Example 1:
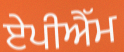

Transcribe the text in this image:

ਏਪੀਐੱਮ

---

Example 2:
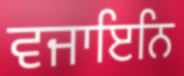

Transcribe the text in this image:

ਵਜਾਇਨਿ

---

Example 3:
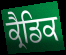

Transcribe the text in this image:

ਕ੍ਰੈਡਿਕ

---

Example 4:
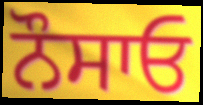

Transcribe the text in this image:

ਨੌਸਾਓ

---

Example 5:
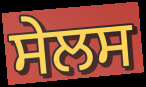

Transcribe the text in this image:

ਸੇਲਸ